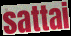
sattai